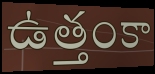
ఉత్తంకా